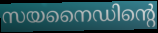
സയനൈഡിന്റെ